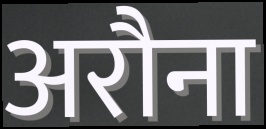
अरौना